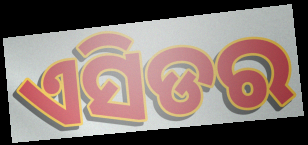
ଏସିଡର